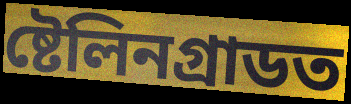
ষ্টেলিনগ্ৰাডত